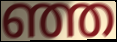
ഞ്ഞ